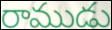
రాముడు